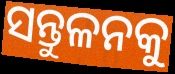
ସନ୍ତୁଳନକୁ